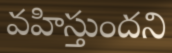
వహిస్తుందని